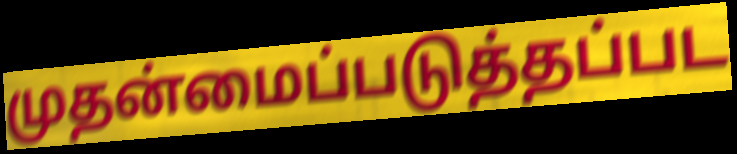
முதன்மைப்படுத்தப்பட